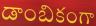
డాంబికంగా